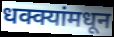
धक्क्यांमधून